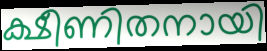
ക്ഷീണിതനായി